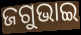
ଜଗୁଭାଇ